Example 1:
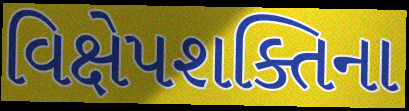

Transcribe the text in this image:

વિક્ષેપશક્તિના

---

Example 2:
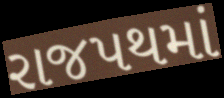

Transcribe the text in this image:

રાજપથમાં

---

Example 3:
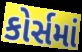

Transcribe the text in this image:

કોર્સમાં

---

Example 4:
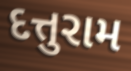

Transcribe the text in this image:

દત્તુરામ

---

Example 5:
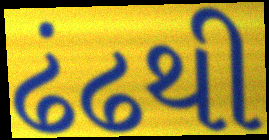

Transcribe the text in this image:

ઢંઢથી